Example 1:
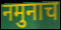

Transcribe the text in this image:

नमुनाच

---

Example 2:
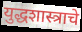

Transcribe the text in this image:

युद्धशास्त्राचे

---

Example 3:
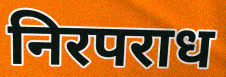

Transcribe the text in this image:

निरपराध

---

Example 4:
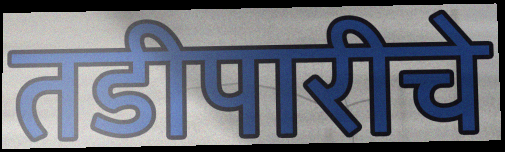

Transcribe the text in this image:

तडीपारीचे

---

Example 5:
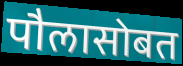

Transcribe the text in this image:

पौलासोबत